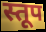
स्तूप